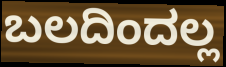
ಬಲದಿಂದಲ್ಲ